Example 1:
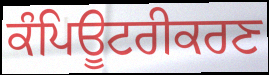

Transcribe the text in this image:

ਕੰਪਿਊਟਰੀਕਰਣ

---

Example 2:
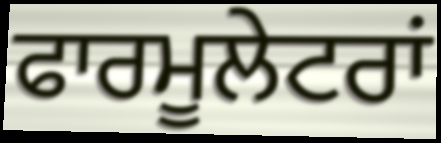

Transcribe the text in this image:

ਫਾਰਮੂਲੇਟਰਾਂ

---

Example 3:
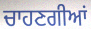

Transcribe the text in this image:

ਚਾਹਣਗੀਆਂ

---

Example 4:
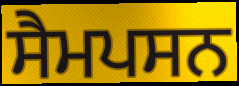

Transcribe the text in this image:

ਸੈਮਪਸਨ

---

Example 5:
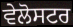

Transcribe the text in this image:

ਵੇਲੋਸਟਰ